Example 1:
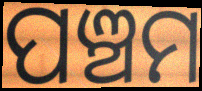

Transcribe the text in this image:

ପଞ୍ଚମ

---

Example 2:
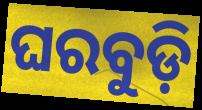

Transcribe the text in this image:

ଘରବୁଡ଼ି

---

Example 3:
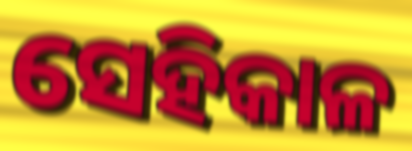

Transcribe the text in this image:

ସେହିକାଳ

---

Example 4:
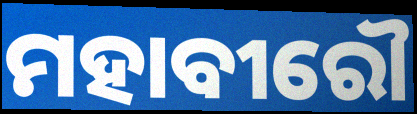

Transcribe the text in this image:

ମହାବୀରୌ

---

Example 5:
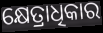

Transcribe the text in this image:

କ୍ଷେତ୍ରାଧିକାର